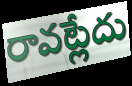
రావట్లేదు